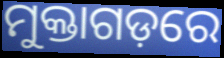
ମୁକ୍ତାଗଡ଼ରେ